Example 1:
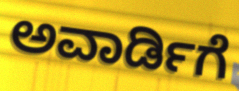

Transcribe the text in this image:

ಅವಾರ್ಡಿಗೆ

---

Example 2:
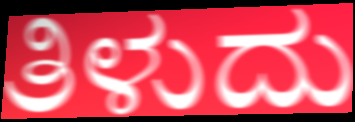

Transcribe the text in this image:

ತಿಳುದು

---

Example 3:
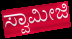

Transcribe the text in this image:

ಸ್ವಾಮೀಜಿ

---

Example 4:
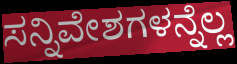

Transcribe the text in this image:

ಸನ್ನಿವೇಶಗಳನ್ನೆಲ್ಲ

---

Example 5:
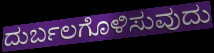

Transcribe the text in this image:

ದುರ್ಬಲಗೊಳಿಸುವುದು